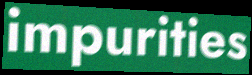
impurities